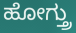
ಹೋಗ್ತ್ರು